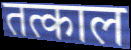
तत्काल